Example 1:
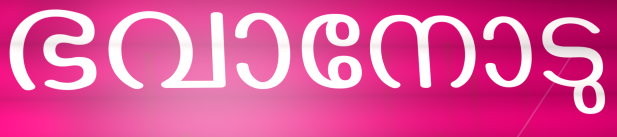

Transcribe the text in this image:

ഭവാനോടു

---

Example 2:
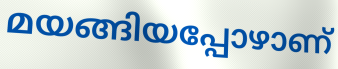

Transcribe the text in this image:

മയങ്ങിയപ്പോഴാണ്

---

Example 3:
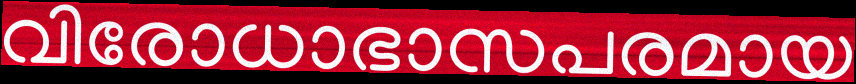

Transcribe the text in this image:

വിരോധാഭാസപരമായ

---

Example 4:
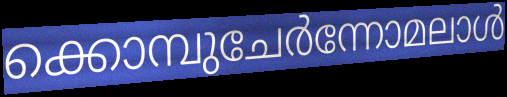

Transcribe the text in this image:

ക്കൊമ്പുചേർന്നോമലാൾ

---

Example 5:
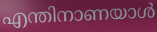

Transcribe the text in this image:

എന്തിനാണയാൾ